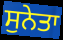
ਸੁਨੇਤਾ